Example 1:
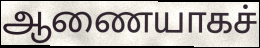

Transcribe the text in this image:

ஆணையாகச்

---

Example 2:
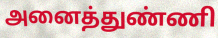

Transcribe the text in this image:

அனைத்துண்ணி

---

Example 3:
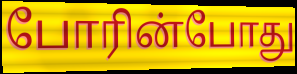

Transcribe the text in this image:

போரின்போது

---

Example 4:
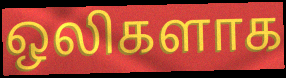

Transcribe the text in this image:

ஒலிகளாக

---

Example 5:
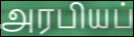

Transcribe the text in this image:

அரபியப்